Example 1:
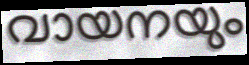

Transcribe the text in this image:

വായനയും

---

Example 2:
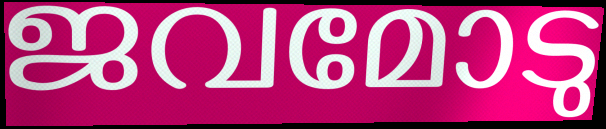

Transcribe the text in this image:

ജവമോടു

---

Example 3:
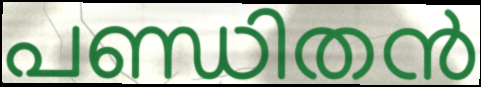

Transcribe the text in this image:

പണ്ഡിതൻ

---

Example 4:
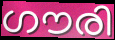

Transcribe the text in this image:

ഗൗരി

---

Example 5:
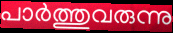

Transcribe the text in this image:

പാർത്തുവരുന്നു